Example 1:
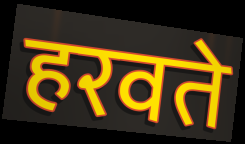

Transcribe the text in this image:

हरवते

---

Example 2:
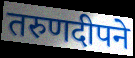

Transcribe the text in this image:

तरुणदीपने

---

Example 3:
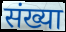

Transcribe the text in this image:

संख्या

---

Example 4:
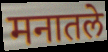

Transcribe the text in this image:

मनातले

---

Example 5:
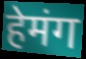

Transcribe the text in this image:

हेमंग